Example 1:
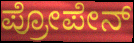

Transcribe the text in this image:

ಪ್ರೋಪೇನ್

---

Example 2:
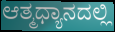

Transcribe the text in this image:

ಆತ್ಮಧ್ಯಾನದಲ್ಲಿ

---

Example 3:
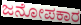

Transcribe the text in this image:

ಜನೋಪಕಾರ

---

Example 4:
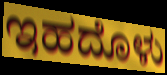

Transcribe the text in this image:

ಇಹದೊಳು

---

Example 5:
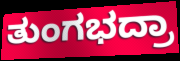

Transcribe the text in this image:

ತುಂಗಭದ್ರಾ